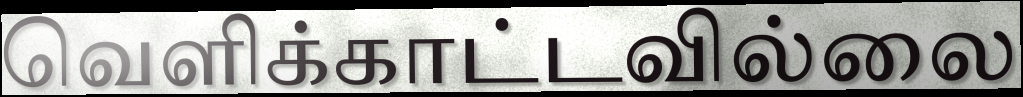
வெளிக்காட்டவில்லை